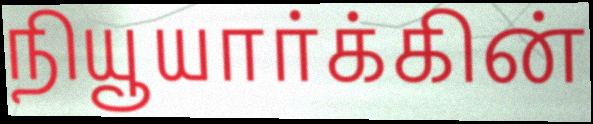
நியூயார்க்கின்